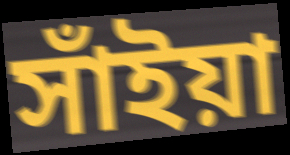
সাঁইয়া